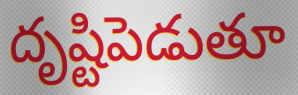
దృష్టిపెడుతూ